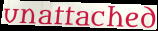
unattached